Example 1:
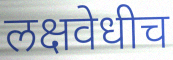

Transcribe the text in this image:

लक्षवेधीच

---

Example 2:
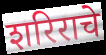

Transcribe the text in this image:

शरिराचे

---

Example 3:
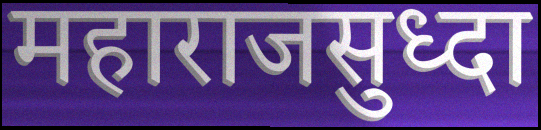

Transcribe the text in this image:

महाराजसुध्दा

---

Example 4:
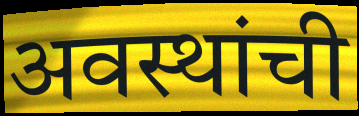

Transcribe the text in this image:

अवस्थांची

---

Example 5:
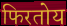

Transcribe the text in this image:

फिरतोय